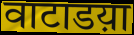
वाटाडय़ा